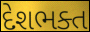
દેશભક્ત